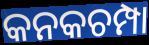
କନକଚମ୍ପା